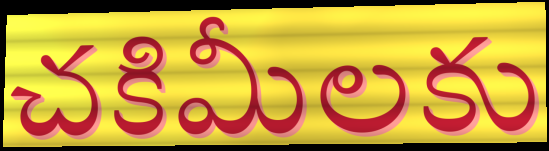
చకిమీలకు